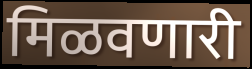
मिळवणारी